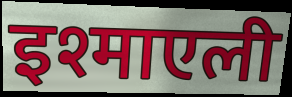
इश्माएली